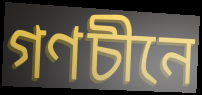
গণচীনে